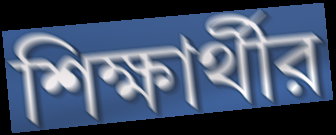
শিক্ষার্থীর